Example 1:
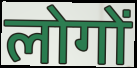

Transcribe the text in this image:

लोगों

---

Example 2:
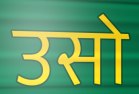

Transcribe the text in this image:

उसो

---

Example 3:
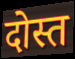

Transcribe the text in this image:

दोस्त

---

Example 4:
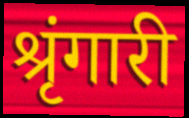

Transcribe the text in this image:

श्रृंगारी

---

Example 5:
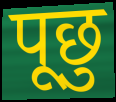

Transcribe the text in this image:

पूछु